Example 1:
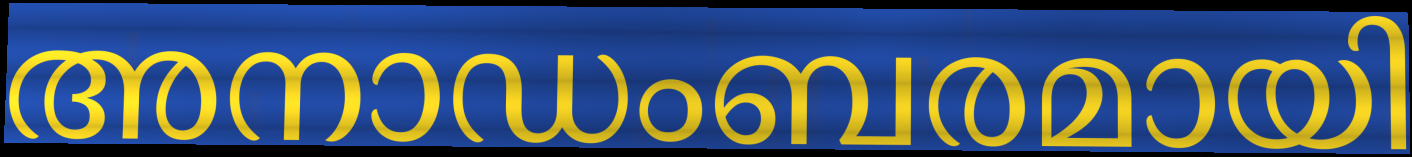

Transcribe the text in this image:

അനാഡംബരമായി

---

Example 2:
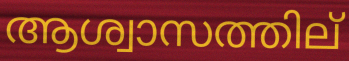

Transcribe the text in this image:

ആശ്വാസത്തില്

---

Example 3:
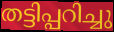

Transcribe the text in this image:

തട്ടിപ്പറിച്ചു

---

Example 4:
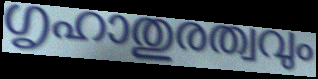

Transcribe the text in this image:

ഗൃഹാതുരത്വവും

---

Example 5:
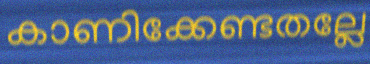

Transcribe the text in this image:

കാണിക്കേണ്ടതല്ലേ